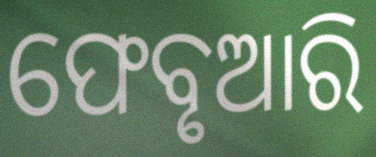
ଫେବୃଆରି